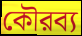
কৌরব্য